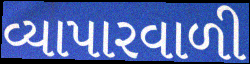
વ્યાપારવાળી